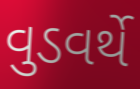
વુડવર્થે